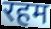
रहम